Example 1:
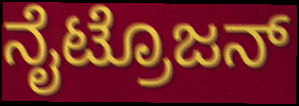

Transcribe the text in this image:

ನೈಟ್ರೊಜನ್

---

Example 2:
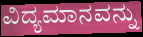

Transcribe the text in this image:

ವಿದ್ಯಮಾನವನ್ನು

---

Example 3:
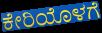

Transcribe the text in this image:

ಕೇರಿಯೊಳಗೆ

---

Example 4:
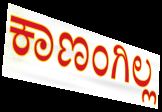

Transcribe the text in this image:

ಕಾಣಂಗಿಲ್ಲ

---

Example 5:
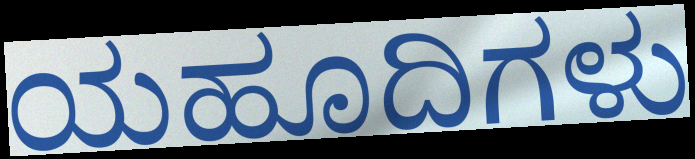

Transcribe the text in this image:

ಯಹೂದಿಗಳು